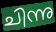
ചിന്നു